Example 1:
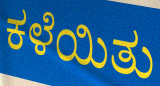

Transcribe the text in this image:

ಕಳೆಯಿತು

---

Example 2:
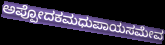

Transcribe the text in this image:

ಅಪ್ಪೋದಕಮಧುಪಾಯಸಮೇವ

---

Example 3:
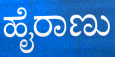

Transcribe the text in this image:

ಹೈರಾಣು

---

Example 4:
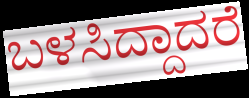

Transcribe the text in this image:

ಬಳಸಿದ್ದಾದರೆ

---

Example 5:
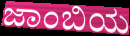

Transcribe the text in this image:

ಜಾಂಬಿಯ